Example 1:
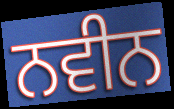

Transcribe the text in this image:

ਨਵੀਨ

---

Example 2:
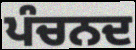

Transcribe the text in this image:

ਪੰਚਨਦ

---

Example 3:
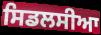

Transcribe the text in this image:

ਸਿਡਲਸੀਆ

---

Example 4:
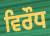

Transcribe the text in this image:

ਵਿਰੌਧ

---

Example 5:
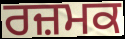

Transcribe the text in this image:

ਰਜ਼ਮਕ